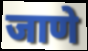
जाणे